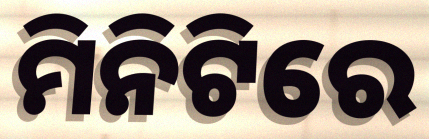
ମିନିଟିରେ